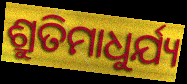
ଶ୍ରୁତିମାଧୁର୍ଯ୍ୟ